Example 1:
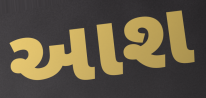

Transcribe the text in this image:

આશ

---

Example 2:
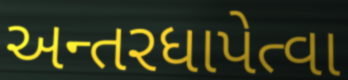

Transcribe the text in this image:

અન્તરધાપેત્વા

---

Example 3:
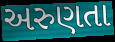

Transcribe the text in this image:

અરુણતા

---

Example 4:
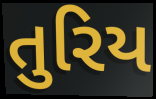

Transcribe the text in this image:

તુરિય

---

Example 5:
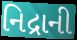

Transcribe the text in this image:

નિદ્રાની